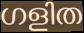
ഗളിത